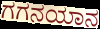
ಗಗನಯಾನ